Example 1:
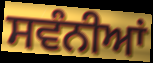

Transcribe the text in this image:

ਸਵੰਨੀਆਂ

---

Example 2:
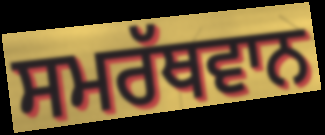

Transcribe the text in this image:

ਸਮਰੱਥਵਾਨ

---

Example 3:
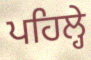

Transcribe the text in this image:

ਪਹਿਲ੍ਹੇ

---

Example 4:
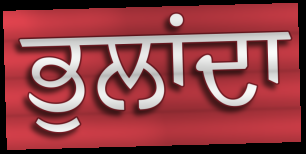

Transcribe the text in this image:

ਭੁਲਾਂਦਾ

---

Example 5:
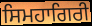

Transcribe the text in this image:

ਸਿਮਹਾਗਿਰੀ